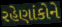
રહેણાંકોને